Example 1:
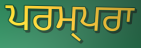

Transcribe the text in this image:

ਪਰਮ੍ਪਰਾ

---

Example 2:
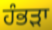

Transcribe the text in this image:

ਹੰਭੜਾ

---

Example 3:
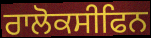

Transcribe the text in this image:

ਰਾਲੋਕਸੀਫਿਨ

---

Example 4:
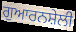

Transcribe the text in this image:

ਗੁਆਰਨਸ਼ੇਲੀ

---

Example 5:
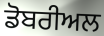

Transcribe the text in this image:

ਡੋਬਰੀਅਲ